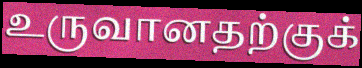
உருவானதற்குக்